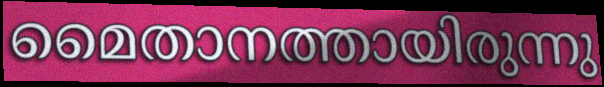
മൈതാനത്തായിരുന്നു